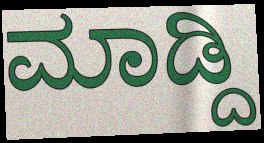
ಮಾಡ್ದಿ